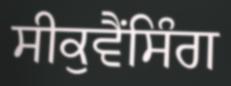
ਸੀਕੁਵੈਂਸਿੰਗ